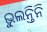
ଭୁଲନ୍ତିନି